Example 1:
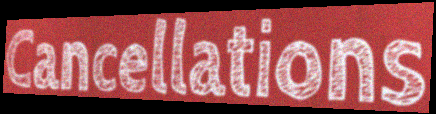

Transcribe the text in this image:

Cancellations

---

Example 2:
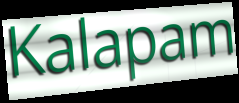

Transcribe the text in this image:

Kalapam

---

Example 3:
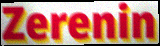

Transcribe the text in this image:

Zerenin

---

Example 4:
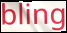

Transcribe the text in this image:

bling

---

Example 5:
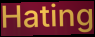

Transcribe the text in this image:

Hating